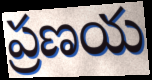
ప్రణయ